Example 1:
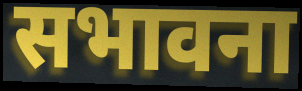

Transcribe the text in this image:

सभावना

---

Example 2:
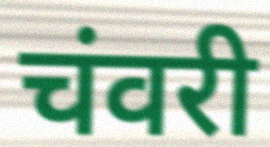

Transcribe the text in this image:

चंवरी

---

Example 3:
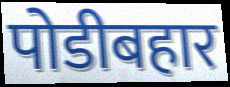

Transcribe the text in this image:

पोडीबहार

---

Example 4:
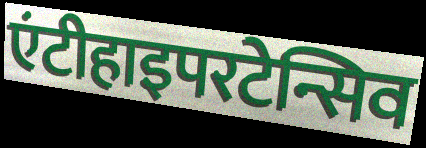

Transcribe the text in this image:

एंटीहाइपरटेन्सिव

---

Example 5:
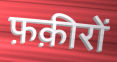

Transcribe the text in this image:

फ़क़ीरों